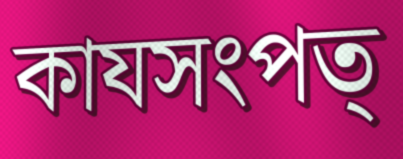
কাযসংপত্